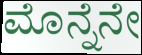
ಮೊನ್ನೆನೇ